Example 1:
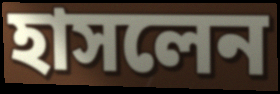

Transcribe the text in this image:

হাসলেন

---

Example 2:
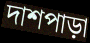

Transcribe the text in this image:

দাশপাড়া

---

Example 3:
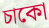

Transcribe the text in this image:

চাকো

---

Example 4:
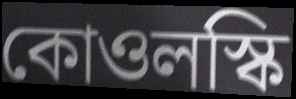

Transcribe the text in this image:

কোওলস্কি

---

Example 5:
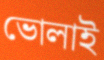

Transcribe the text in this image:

ভোলাই